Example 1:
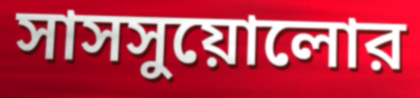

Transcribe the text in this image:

সাসসুয়োলোর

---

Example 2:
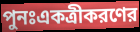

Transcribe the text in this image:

পুনঃএকত্রীকরণের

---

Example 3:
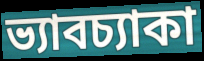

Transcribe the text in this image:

ভ্যাবচ্যাকা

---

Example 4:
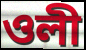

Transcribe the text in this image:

ওলী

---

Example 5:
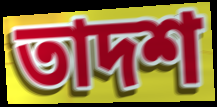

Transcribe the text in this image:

তাদশ